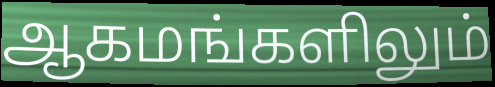
ஆகமங்களிலும்